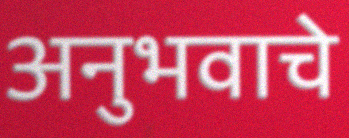
अनुभवाचे